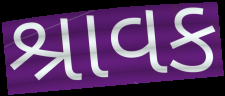
શ્રાવક